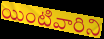
యింటివారిని